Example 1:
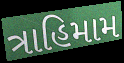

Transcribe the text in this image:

ત્રાહિમામ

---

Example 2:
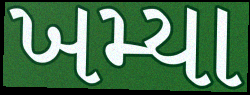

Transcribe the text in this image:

ખમ્યા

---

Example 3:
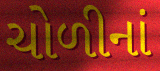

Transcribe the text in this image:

ચોળીનાં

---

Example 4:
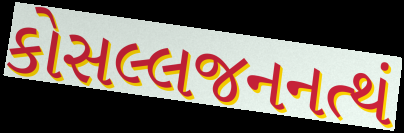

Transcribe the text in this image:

કોસલ્લજનનત્થં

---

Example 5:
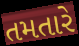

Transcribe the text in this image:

તમતારે